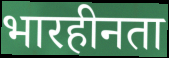
भारहीनता